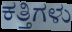
ಕತ್ತಿಗಳು